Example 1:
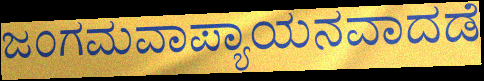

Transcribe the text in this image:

ಜಂಗಮವಾಪ್ಯಾಯನವಾದಡೆ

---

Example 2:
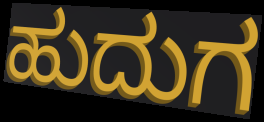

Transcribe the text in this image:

ಹುದುಗ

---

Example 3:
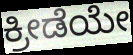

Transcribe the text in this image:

ಕ್ರೀಡೆಯೇ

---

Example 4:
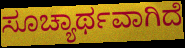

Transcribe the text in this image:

ಸೂಚ್ಯಾರ್ಥವಾಗಿದೆ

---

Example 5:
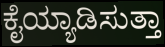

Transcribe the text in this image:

ಕೈಯ್ಯಾಡಿಸುತ್ತಾ